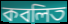
কবলিত